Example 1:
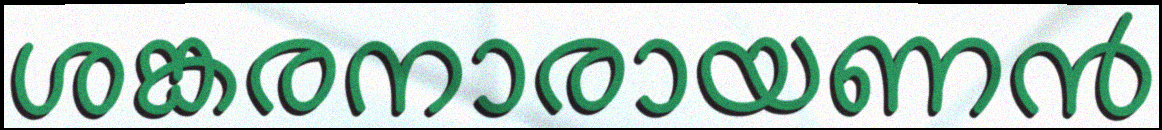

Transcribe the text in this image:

ശങ്കരനാരായണൻ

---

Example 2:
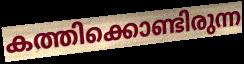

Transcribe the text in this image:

കത്തിക്കൊണ്ടിരുന്ന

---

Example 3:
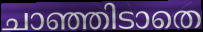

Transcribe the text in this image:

ചാഞ്ഞിടാതെ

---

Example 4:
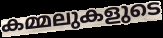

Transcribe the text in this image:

കമ്മലുകളുടെ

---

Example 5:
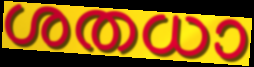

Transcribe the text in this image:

ശതധാ